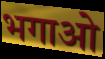
भगाओ